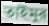
তাইমুর